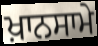
ਖ਼ਾਨਸਾਮੇ